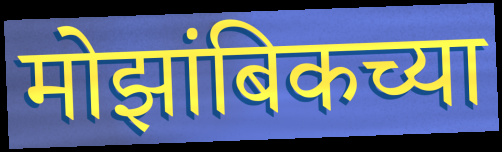
मोझांबिकच्या